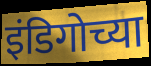
इंडिगोच्या